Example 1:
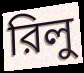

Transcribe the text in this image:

রিলু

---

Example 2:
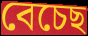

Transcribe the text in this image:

বেচেছ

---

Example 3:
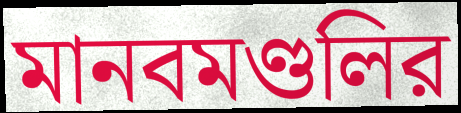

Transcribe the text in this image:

মানবমণ্ডলির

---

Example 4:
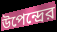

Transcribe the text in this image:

উপেন্দ্রের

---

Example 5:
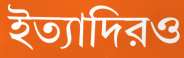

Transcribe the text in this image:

ইত্যাদিরও